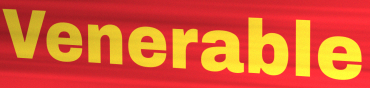
Venerable